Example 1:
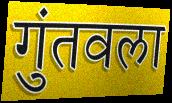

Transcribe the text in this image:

गुंतवला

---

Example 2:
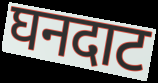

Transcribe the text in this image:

घनदाट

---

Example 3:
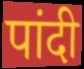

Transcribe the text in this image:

पांदी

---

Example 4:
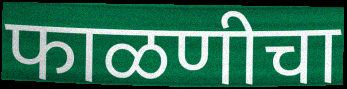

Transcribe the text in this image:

फाळणीचा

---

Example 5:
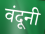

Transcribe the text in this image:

वंदूनी